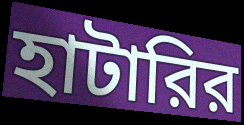
হাটারির